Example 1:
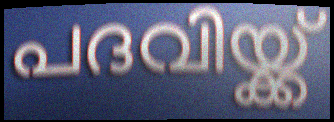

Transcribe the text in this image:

പദവിയ്ക്ക്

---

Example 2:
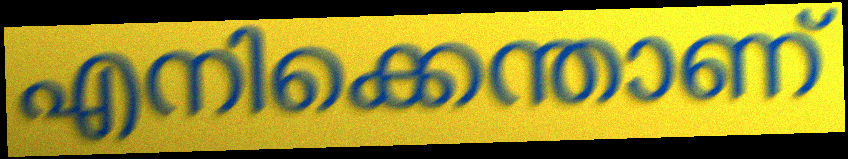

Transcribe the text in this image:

എനിക്കെന്താണ്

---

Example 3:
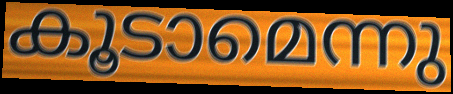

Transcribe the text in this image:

കൂടാമെന്നു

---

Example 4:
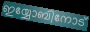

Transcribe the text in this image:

ഇയ്യോബിനോട്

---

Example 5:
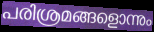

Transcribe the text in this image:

പരിശ്രമങ്ങളൊന്നും